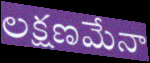
లక్షణమేనా